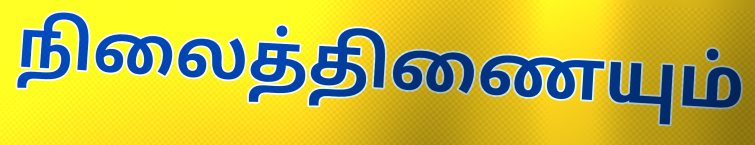
நிலைத்திணையும்